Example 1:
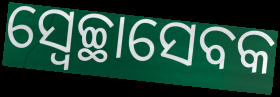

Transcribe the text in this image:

ସ୍ୱେଚ୍ଛାସେବକ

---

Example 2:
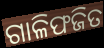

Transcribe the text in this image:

ଗାଳିଫଜିତ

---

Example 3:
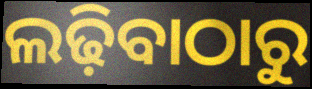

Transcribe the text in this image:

ଲଢ଼ିବାଠାରୁ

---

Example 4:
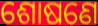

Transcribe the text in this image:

ଶୋଷଣେ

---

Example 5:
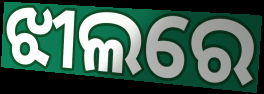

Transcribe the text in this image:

ଝୀଲରେ